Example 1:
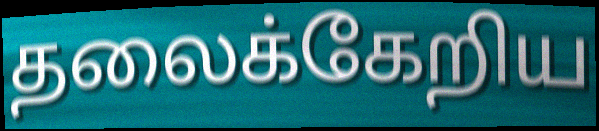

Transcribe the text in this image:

தலைக்கேறிய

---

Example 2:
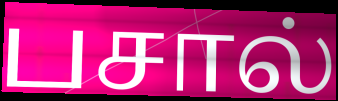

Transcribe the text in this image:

பசால்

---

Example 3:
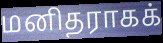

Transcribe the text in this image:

மனிதராகக்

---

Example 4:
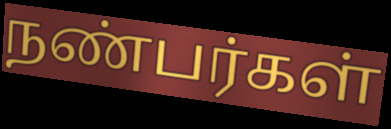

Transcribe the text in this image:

நண்பர்கள்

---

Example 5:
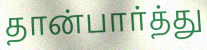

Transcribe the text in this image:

தான்பார்த்து